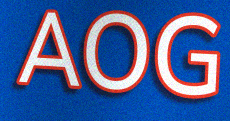
AOG